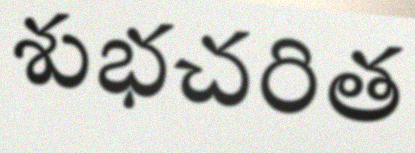
శుభచరిత